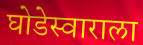
घोडेस्वाराला